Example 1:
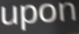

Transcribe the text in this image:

upon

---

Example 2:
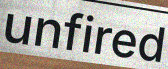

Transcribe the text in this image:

unfired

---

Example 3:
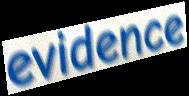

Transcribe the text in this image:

evidence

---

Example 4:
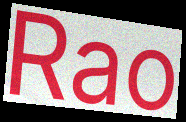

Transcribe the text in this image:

Rao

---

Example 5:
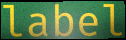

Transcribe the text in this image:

label